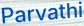
Parvathi